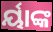
ର୍ୟାଙ୍କ